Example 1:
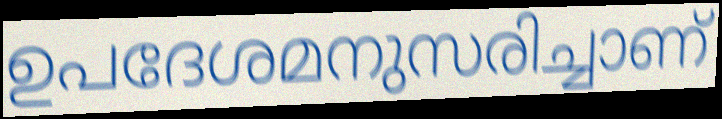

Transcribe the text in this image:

ഉപദേശമനുസരിച്ചാണ്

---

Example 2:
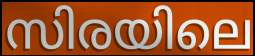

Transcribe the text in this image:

സിരയിലെ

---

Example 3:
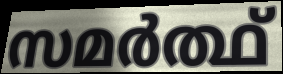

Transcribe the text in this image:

സമർത്ഥ്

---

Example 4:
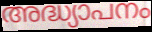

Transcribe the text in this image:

അദ്ധ്യാപനം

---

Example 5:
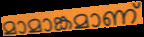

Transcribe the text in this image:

മാമാങ്കമാണ്